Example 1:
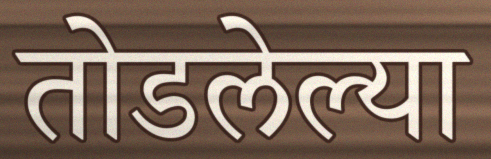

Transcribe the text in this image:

तोडलेल्या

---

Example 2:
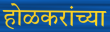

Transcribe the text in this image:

होळकरांच्या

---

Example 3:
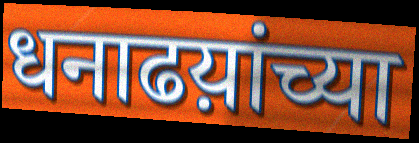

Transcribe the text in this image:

धनाढय़ांच्या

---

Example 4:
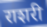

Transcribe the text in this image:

राशरी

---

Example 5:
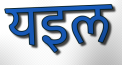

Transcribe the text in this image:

यइल